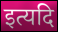
इत्यदि